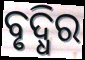
ବୃଦ୍ଧିର